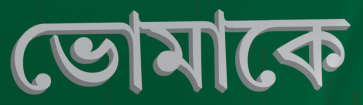
ভোমাকে